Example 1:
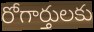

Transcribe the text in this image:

రోగార్తులకు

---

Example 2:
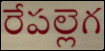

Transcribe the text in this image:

రేపల్లెగ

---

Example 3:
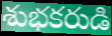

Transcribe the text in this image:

శుభకరుడి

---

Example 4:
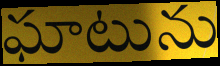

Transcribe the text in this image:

ఘాటును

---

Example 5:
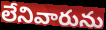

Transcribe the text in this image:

లేనివారును